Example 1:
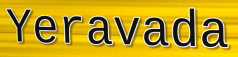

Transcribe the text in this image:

Yeravada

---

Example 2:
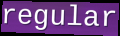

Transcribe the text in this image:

regular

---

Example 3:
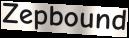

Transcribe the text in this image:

Zepbound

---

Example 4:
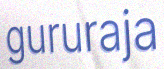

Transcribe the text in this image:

gururaja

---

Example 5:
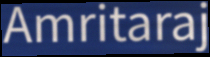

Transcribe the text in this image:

Amritaraj